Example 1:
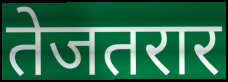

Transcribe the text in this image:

तेजतरार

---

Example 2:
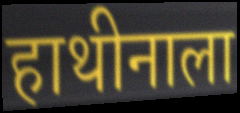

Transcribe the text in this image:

हाथीनाला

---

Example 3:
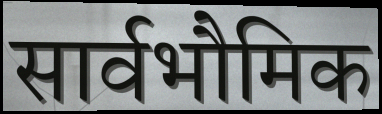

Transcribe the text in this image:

सार्वभौमिक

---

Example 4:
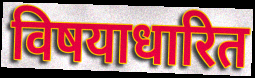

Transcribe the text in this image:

विषयाधारित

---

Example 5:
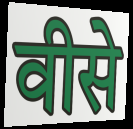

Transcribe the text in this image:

वीसे